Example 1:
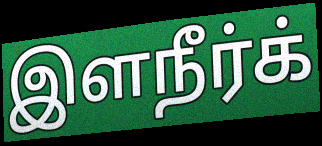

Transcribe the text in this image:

இளநீர்க்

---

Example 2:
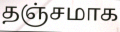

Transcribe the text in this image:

தஞ்சமாக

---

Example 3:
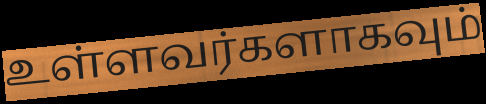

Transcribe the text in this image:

உள்ளவர்களாகவும்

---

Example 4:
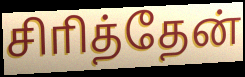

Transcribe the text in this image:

சிரித்தேன்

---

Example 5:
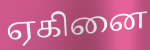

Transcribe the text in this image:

ஏகினை